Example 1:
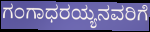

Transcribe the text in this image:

ಗಂಗಾಧರಯ್ಯನವರಿಗೆ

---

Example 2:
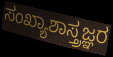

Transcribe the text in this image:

ಸಂಖ್ಯಾಶಾಸ್ತ್ರಜ್ಞರ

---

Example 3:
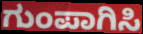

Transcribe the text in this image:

ಗುಂಪಾಗಿಸಿ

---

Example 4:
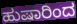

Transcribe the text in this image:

ಹುಷಾರಿಂದ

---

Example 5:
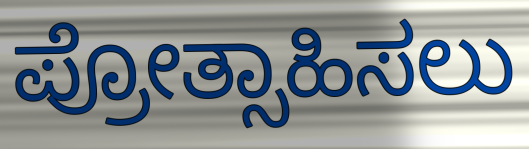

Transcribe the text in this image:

ಪ್ರೋತ್ಸಾಹಿಸಲು